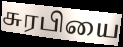
சுரபியை